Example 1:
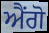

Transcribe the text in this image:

ਐਂਗੋ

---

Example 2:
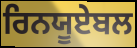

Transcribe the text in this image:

ਰਿਨਯੂਏਬਲ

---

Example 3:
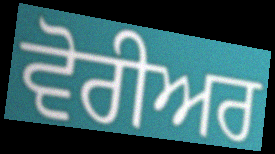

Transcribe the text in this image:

ਵੋਰੀਅਰ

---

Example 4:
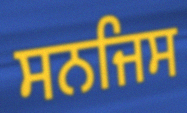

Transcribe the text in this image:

ਸਨਜਿਸ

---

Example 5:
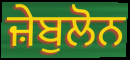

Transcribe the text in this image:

ਜ਼ੇਬੁਲੋਨ